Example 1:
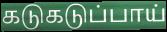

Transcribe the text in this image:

கடுகடுப்பாய்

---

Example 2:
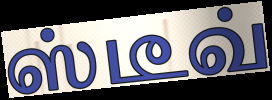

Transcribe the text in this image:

ஸ்டீவ்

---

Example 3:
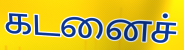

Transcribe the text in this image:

கடனைச்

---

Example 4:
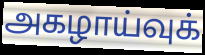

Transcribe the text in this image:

அகழாய்வுக்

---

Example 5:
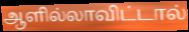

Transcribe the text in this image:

ஆளில்லாவிட்டால்